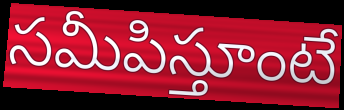
సమీపిస్తూంటే